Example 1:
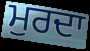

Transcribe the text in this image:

ਮੁਰਦਾ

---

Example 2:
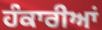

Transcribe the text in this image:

ਹੰਕਾਰੀਆਂ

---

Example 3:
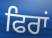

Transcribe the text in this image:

ਫਿਰਾਂ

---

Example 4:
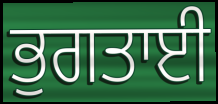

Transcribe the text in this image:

ਭੁਗਤਾਈ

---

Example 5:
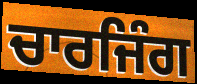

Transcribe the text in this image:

ਚਾਰਜਿੰਗ